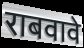
राबवावे